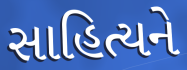
સાહિત્યને